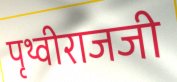
पृथ्वीराजजी